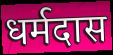
धर्मदास